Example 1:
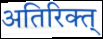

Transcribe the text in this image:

अतिरिक्त्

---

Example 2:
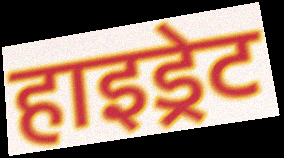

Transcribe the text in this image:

हाइड्रेट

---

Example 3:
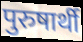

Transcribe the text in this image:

पुरुषार्थी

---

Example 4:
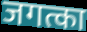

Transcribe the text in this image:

जगत्का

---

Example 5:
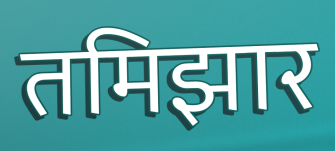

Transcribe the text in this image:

तमिझार